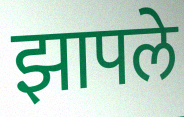
झापले